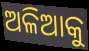
ଅଳିଆକୁ